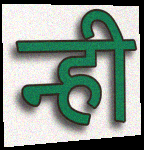
न्ही